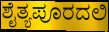
ಶೈತ್ಯಪೂರದಲಿ